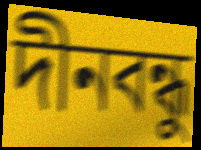
দীনবন্ধু